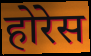
होरेस